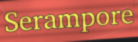
Serampore